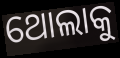
ଥୋଲାକୁ